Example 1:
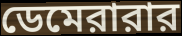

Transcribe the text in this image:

ডেমেরারার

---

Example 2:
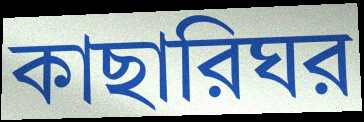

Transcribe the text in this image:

কাছারিঘর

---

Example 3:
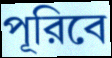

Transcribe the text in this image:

পূরিবে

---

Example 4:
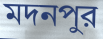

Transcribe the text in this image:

মদনপুর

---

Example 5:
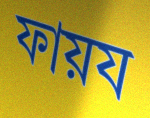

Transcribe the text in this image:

ফায়য